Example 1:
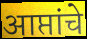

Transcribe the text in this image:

आप्तांचे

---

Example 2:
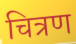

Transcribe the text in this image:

चित्रण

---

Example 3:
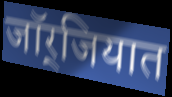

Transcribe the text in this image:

जॉर्जियात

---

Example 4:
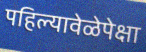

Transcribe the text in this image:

पहिल्यावेळेपेक्षा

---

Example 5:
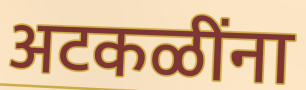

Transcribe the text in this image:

अटकळींना